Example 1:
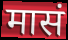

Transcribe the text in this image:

मासं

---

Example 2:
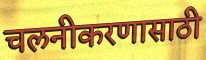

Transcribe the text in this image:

चलनीकरणासाठी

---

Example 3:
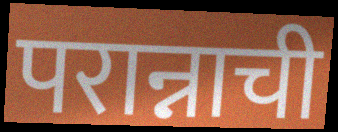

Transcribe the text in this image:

परान्नाची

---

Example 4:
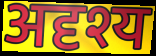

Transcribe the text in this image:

अदृश्य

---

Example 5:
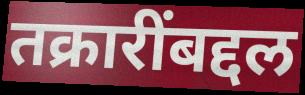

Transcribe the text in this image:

तक्रारींबद्दल